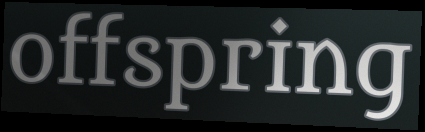
offspring